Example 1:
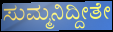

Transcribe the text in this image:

ಸುಮ್ಮನಿದ್ದೀತೇ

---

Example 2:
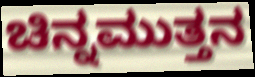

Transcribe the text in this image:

ಚಿನ್ನಮುತ್ತನ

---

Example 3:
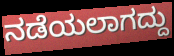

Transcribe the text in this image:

ನಡೆಯಲಾಗದ್ದು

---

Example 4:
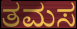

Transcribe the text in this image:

ತಮಸ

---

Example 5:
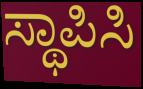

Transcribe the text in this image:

ಸ್ಥಾಪಿಸಿ